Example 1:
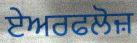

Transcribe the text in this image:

ਏਅਰਫਲੋਜ਼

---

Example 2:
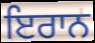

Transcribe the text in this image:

ਇਰਾਨ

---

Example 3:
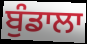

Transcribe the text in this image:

ਬੁੰਡਾਲਾ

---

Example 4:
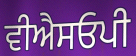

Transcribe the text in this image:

ਵੀਐਸਓਪੀ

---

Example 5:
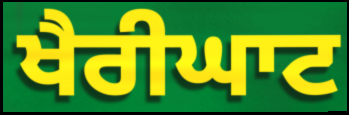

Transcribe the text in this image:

ਖੈਰੀਘਾਟ